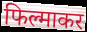
फिल्माकर